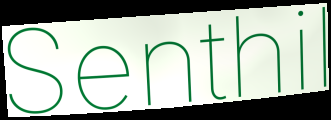
Senthil